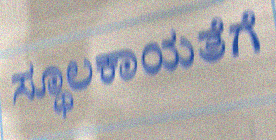
ಸ್ಥೂಲಕಾಯತೆಗೆ